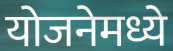
योजनेमध्ये